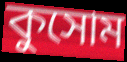
কুসোম